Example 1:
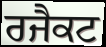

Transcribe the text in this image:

ਰਜੈਕਟ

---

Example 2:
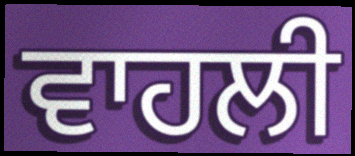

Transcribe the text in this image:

ਵਾਹਲੀ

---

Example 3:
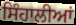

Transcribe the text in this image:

ਸਿੰਹਾਲੀਆਂ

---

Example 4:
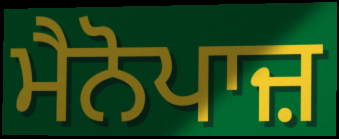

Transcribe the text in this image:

ਮੈਨੋਪਾਜ਼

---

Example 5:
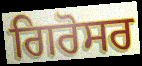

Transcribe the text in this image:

ਗਿਰੋਸਰ